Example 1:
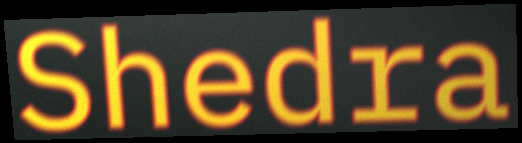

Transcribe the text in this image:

Shedra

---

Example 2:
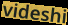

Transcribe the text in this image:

videshi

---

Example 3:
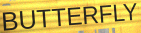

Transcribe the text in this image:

BUTTERFLY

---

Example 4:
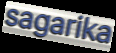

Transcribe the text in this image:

sagarika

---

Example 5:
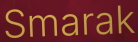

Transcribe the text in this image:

Smarak